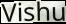
Vishu